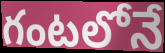
గంటలోనే